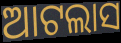
ଆଟଲାସ